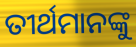
ତୀର୍ଥମାନଙ୍କୁ